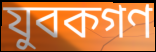
যুবকগণ